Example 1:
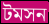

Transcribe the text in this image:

টমসন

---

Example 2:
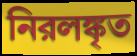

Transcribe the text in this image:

নিরলঙ্কৃত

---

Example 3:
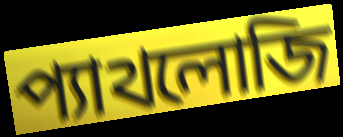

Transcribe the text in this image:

প্যাথলোজি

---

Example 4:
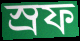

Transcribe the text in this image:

স্রফ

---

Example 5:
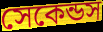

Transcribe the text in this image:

সেকেন্ডস